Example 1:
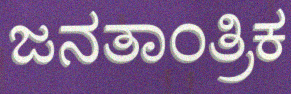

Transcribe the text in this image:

ಜನತಾಂತ್ರಿಕ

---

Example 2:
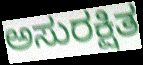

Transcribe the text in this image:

ಅಸುರಕ್ಷಿತ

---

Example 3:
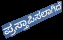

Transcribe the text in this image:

ಪ್ರಸ್ತಾಪಿಸಲಾಗಿದೆ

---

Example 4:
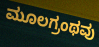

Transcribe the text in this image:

ಮೂಲಗ್ರಂಥವು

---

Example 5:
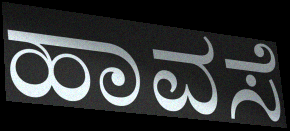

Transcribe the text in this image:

ಹಾವಸೆ